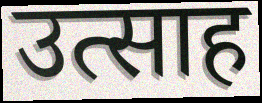
उत्साह